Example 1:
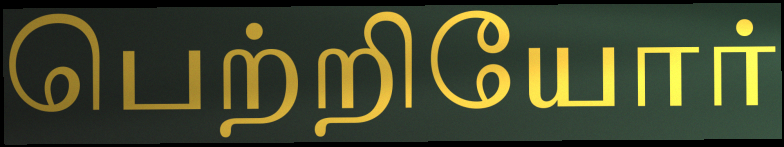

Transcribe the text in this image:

பெற்றியோர்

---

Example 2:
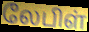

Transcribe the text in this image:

லேபிள்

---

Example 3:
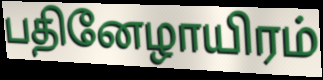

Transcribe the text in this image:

பதினேழாயிரம்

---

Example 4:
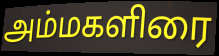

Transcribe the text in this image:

அம்மகளிரை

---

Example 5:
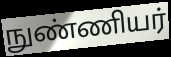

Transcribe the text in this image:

நுண்ணியர்